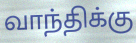
வாந்திக்கு